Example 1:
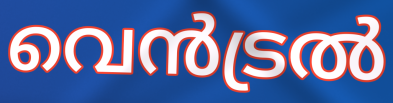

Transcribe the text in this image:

വെൻട്രൽ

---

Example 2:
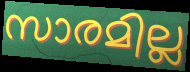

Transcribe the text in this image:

സാരമില്ല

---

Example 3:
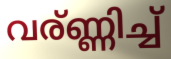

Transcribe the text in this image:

വര്ണ്ണിച്ച്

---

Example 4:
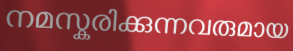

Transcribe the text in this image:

നമസ്കരിക്കുന്നവരുമായ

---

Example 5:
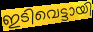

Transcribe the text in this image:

ഇടിവെട്ടായി